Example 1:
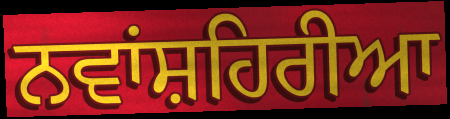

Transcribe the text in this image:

ਨਵਾਂਸ਼ਹਿਰੀਆ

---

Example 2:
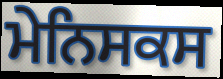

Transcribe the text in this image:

ਮੇਨਿਸਕਸ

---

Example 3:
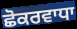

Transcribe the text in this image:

ਛੋਕਰਵਾਧਾ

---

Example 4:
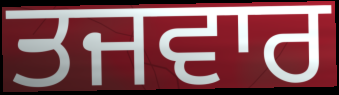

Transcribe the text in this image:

ਤਜਵਾਰ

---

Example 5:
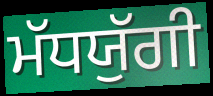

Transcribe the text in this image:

ਮੱਧਯੁੱਗੀ